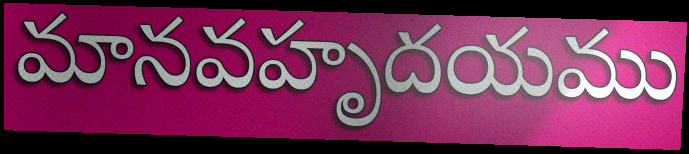
మానవహృదయము